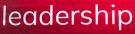
leadership